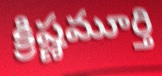
క్రిష్ణమూర్తి